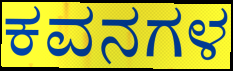
ಕವನಗಳ